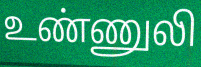
உண்ணுலி